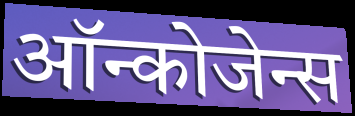
ऑन्कोजेन्स